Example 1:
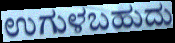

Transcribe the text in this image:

ಉಗುಳಬಹುದು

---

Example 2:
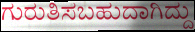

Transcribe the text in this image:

ಗುರುತಿಸಬಹುದಾಗಿದ್ದು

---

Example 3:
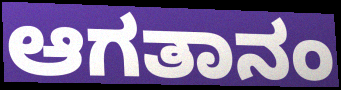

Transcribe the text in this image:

ಆಗತಾನಂ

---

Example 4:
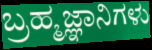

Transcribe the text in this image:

ಬ್ರಹ್ಮಜ್ಞಾನಿಗಳು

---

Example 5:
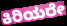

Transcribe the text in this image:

ಕಿರಿಯರೇ